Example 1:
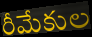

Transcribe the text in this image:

రీమేకుల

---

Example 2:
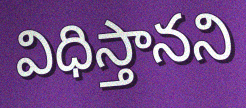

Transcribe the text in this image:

విధిస్తానని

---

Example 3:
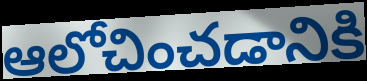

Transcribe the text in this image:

ఆలోచించడానికి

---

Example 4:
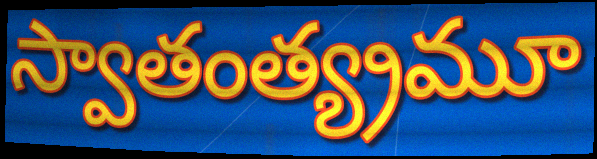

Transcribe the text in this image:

స్వాతంత్య్రమూ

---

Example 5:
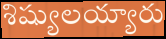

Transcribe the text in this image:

శిష్యులయ్యారు